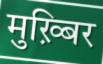
मुख़्बिर